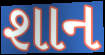
શાન